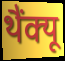
थैंक्यू